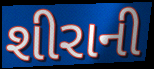
શીરાની